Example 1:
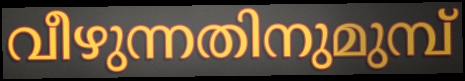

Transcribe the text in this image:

വീഴുന്നതിനുമുമ്പ്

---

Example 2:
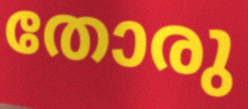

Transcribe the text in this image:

തോരു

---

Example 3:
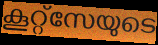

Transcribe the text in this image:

കൂറ്റ്സേയുടെ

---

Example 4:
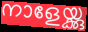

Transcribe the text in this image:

നാളേയ്ക്കു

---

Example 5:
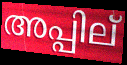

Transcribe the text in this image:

അപ്പില്